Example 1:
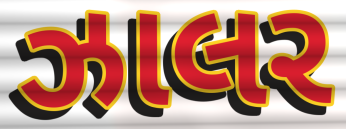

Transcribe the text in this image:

ઝાલર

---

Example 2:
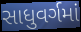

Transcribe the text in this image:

સાધુવર્ગમાં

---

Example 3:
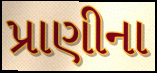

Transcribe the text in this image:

પ્રાણીના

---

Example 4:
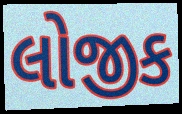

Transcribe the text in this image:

લોજીક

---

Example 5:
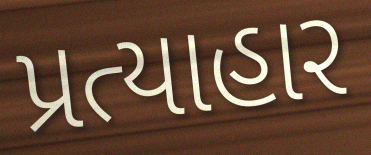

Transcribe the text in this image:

પ્રત્યાહાર